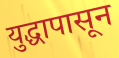
युद्धापासून